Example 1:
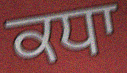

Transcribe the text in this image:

ਕਧਾ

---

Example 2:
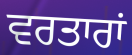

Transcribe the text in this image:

ਵਰਤਾਰਾਂ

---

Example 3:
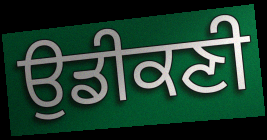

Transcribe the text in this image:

ਉਡੀਕਣੀ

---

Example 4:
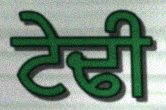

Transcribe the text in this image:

ਟੇਢੀ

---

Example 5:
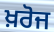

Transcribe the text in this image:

ਖ਼ਰੋਜ